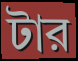
টার